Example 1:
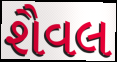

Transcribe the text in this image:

શૈવલ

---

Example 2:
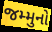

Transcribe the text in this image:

જમ્મુનો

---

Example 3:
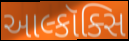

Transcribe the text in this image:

આલ્કૉક્સિ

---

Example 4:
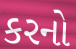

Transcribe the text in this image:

કરનો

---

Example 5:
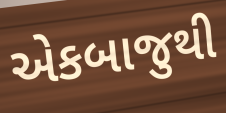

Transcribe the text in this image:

એકબાજુથી